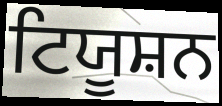
ਟਿਯੂਸ਼ਨ